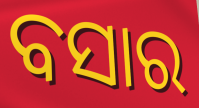
ବସାର